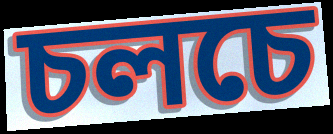
চলচে